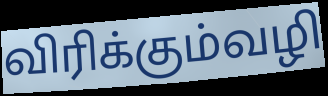
விரிக்கும்வழி